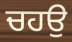
ਚਹਉ